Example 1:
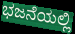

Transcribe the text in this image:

ಭಜನೆಯಲ್ಲಿ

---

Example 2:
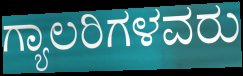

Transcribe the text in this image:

ಗ್ಯಾಲರಿಗಳವರು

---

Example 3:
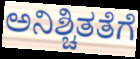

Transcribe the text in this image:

ಅನಿಶ್ಚಿತತೆಗೆ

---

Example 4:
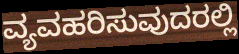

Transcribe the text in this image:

ವ್ಯವಹರಿಸುವುದರಲ್ಲಿ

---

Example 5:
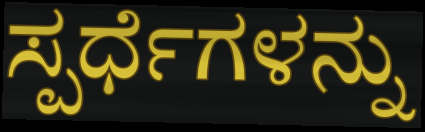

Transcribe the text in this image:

ಸ್ಪರ್ಧೆಗಳನ್ನು